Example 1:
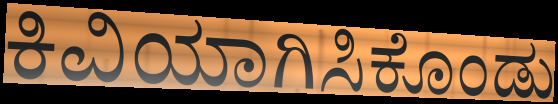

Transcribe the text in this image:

ಕಿವಿಯಾಗಿಸಿಕೊಂಡು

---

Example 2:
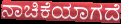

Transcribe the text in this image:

ನಾಚಿಕೆಯಾಗದೆ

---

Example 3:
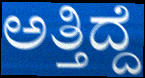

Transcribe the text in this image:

ಅತ್ತಿದ್ದೆ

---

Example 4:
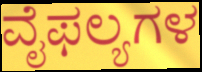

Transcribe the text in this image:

ವೈಫಲ್ಯಗಳ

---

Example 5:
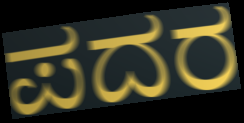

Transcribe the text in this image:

ಪದರ